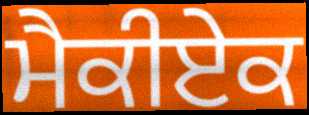
ਮੈਕੀਏਕ